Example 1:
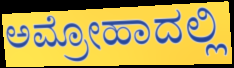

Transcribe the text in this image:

ಅಮ್ರೋಹಾದಲ್ಲಿ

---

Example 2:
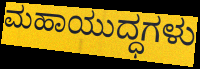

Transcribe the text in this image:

ಮಹಾಯುದ್ಧಗಳು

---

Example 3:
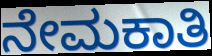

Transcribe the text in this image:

ನೇಮಕಾತಿ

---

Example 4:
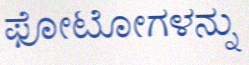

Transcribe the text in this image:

ಫೋಟೋಗಳನ್ನು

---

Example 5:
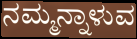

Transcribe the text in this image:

ನಮ್ಮನ್ನಾಳುವ